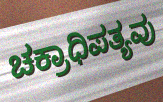
ಚಕ್ರಾಧಿಪತ್ಯವು